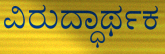
ವಿರುದ್ಧಾರ್ಥಕ